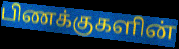
பிணக்குகளின்